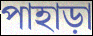
পাহাড়া